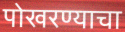
पोखरण्याचा